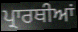
ਪ੍ਰਾਰਥੀਆਂ